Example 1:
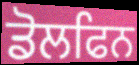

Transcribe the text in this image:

ਡੋਲਫਿਨ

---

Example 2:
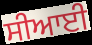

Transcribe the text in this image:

ਸੀਆਈ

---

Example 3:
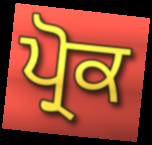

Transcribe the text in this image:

ਪ੍ਰੋਕ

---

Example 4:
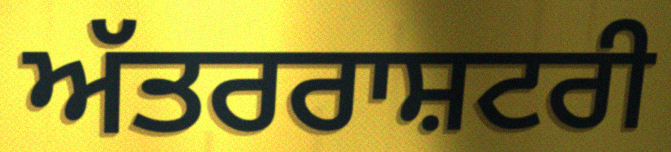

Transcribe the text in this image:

ਅੱਤਰਰਾਸ਼ਟਰੀ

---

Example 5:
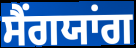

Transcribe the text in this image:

ਸੈਂਗਯਾਂਗ